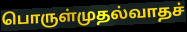
பொருள்முதல்வாதச்